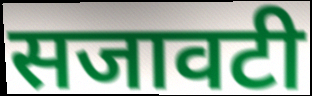
सजावटी